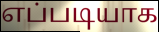
எப்படியாக